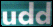
udd